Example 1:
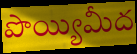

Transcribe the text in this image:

పొయ్యిమీద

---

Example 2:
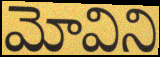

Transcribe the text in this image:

మోవిని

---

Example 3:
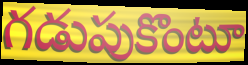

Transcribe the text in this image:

గడుపుకొంటూ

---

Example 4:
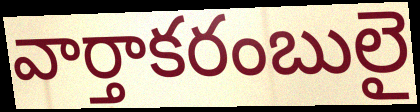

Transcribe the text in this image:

వార్తాకరంబులై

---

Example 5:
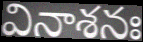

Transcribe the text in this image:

వినాశనః